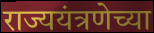
राज्ययंत्रणेच्या